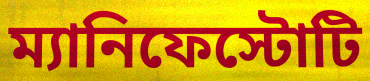
ম্যানিফেস্টোটি